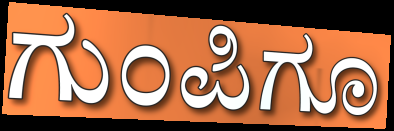
ಗುಂಪಿಗೂ